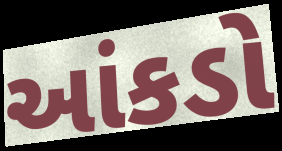
આંકડો